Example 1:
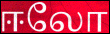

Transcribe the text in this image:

ஈலோ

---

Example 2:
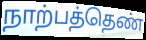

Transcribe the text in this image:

நாற்பத்தெண்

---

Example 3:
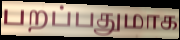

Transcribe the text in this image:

பறப்பதுமாக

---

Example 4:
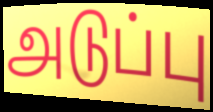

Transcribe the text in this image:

அடுப்பு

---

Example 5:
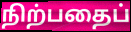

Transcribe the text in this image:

நிற்பதைப்